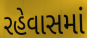
રહેવાસમાં